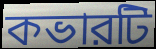
কভারটি